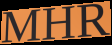
MHR